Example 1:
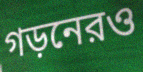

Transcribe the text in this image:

গড়নেরও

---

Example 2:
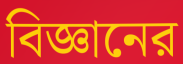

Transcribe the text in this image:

বিজ্ঞানের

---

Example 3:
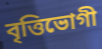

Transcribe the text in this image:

বৃত্তিভোগী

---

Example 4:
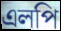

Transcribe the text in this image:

এলপি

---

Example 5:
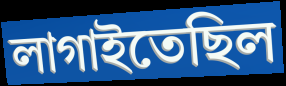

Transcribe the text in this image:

লাগাইতেছিল